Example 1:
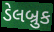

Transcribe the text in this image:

ડેલબ્રુક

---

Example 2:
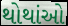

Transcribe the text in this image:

થોથાંઓ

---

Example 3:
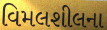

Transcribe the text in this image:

વિમલશીલના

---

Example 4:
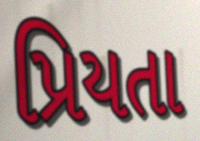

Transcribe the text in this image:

પ્રિયતા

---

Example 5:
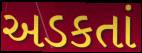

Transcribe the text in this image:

અડકતાં